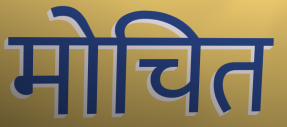
मोचित